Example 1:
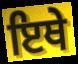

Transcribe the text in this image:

ਇਥੇ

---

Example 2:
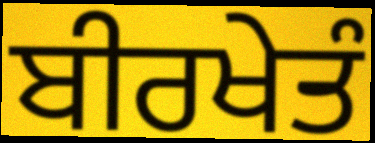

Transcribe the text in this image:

ਬੀਰਖੇਤੰ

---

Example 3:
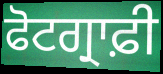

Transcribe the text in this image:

ਫੋਟਗ੍ਰਾਫ਼ੀ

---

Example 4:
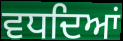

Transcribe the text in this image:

ਵਧਦਿਆਂ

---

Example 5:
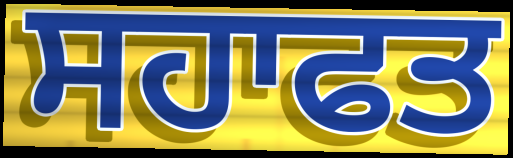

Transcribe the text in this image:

ਸਹਾਫਤ